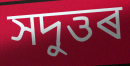
সদুত্তৰ